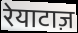
रेयाटाज़